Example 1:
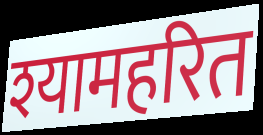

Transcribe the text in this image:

श्यामहरित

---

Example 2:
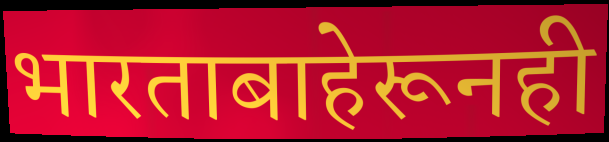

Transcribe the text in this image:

भारताबाहेरूनही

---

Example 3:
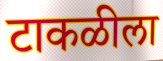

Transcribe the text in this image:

टाकळीला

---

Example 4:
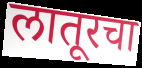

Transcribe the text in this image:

लातूरचा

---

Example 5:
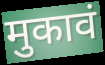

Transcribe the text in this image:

मुकावं